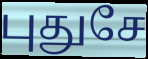
புதுசே